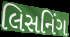
લિસનિંગ